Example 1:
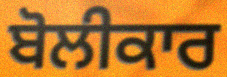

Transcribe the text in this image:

ਬੋਲੀਕਾਰ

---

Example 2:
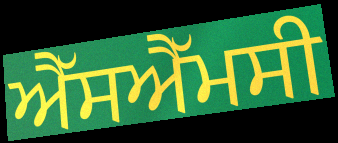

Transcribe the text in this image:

ਐੱਸਐੱਮਸੀ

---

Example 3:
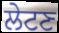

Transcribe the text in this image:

ਲੇਟਣ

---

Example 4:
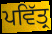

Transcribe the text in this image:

ਪਵਿੱਤ੍ਰ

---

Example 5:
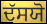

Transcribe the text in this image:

ਦੱਸਯੋ